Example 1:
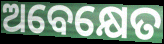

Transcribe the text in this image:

ଅବେକ୍ଷେତ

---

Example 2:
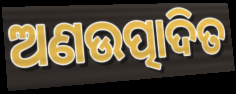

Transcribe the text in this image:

ଅଣଉତ୍ପାଦିତ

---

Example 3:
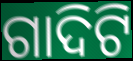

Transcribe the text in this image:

ଗାଦିଟି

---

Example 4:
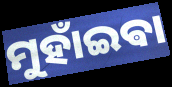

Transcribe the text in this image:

ମୁହାଁଇଵା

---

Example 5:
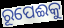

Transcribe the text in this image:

ରୂପେଈକୁ